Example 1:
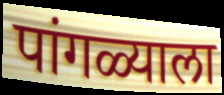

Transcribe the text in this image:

पांगळ्याला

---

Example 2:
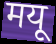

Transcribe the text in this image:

मयू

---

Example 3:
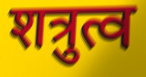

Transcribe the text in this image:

शत्रुत्व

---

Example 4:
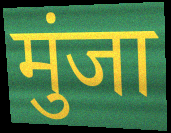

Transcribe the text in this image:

मुंजा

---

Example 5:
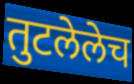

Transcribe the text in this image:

तुटलेलेच